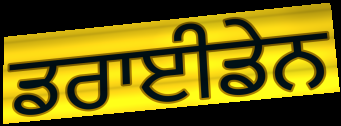
ਡਰਾਈਡੇਨ